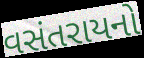
વસંતરાયનો